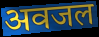
अवजल